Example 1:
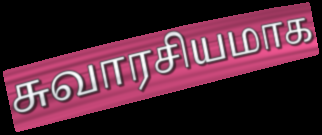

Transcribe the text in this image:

சுவாரசியமாக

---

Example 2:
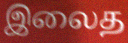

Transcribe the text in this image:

இலைத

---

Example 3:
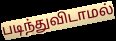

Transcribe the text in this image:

படிந்துவிடாமல்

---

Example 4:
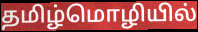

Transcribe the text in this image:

தமிழ்மொழியில்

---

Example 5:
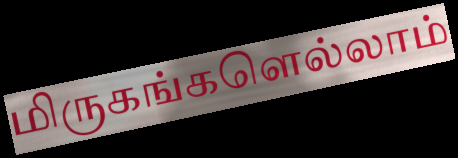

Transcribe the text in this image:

மிருகங்களெல்லாம்